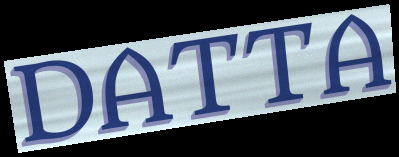
DATTA